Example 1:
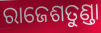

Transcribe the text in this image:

ରାଜେଶତୁଣ୍ଡା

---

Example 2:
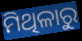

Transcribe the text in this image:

ମିଥିଳାରୁ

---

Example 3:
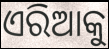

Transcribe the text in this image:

ଏରିଆକୁ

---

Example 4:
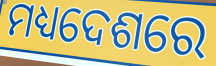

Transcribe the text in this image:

ମଧ୍ୟଦେଶରେ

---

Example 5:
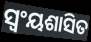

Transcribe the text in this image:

ସ୍ୱଂୟଶାସିତ